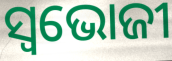
ସ୍ବଭୋଜୀ